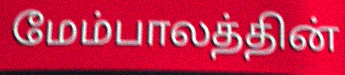
மேம்பாலத்தின்